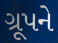
ગ્રૂપને